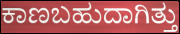
ಕಾಣಬಹುದಾಗಿತ್ತು